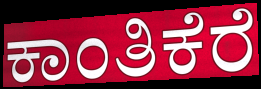
ಕಾಂತಿಕೆರೆ